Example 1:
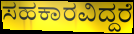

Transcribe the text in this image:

ಸಹಕಾರವಿದ್ದರೆ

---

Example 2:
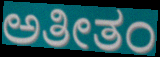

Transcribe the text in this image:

ಅತೀತಂ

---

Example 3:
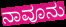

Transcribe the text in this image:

ನಾವೂನು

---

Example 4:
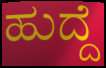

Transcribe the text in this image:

ಹುದ್ದೆ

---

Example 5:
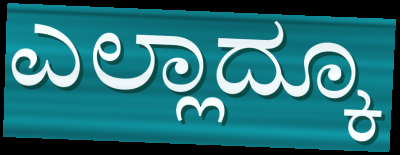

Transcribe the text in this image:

ಎಲ್ಲಾದ್ಕೂ